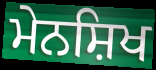
ਮੇਨਸ਼ਿਖ